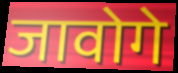
जावोगे